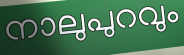
നാലുപുറവും